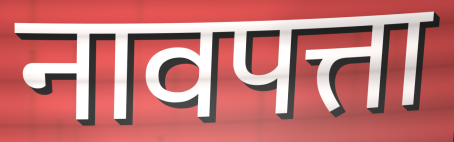
नावपत्ता